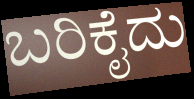
ಬರಿಕೈದು